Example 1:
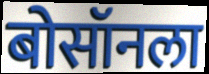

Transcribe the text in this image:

बोसॉनला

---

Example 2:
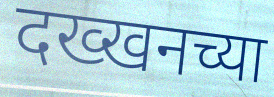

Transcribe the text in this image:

दख्खनच्या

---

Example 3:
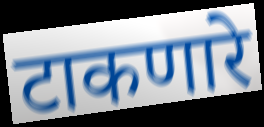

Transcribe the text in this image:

टाकणारे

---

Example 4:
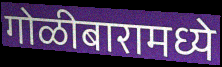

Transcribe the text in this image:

गोळीबारामध्ये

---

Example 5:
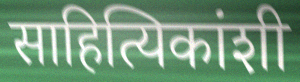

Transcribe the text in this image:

साहित्यिकांशी